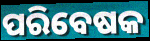
ପରିବେଷକ